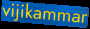
vijikammar